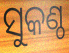
ସୁକଣ୍ଠ